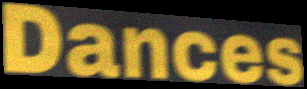
Dances